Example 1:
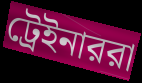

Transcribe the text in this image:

ট্রেইনাররা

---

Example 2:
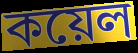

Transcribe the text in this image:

কয়েল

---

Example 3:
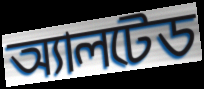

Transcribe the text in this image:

অ্যালটেড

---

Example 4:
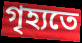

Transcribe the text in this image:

গৃহ্যতে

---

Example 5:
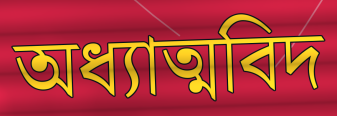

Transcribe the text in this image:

অধ্যাত্মবিদ